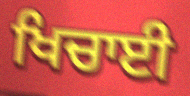
ਖਿਚਾਈ